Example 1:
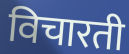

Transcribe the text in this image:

विचारती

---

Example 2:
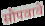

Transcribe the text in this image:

सोपवावे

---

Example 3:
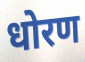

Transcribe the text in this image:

धोरण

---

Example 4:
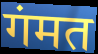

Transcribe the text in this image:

गंमत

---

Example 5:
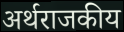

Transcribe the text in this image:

अर्थराजकीय